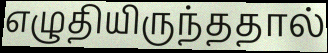
எழுதியிருந்ததால்